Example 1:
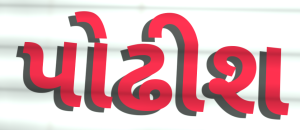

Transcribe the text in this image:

પોઢીશ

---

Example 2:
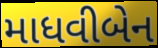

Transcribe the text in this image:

માધવીબેન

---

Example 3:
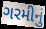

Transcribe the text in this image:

ગરમીનું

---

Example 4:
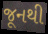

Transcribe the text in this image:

જૂનથી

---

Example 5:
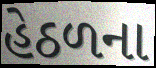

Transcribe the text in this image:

હેઠળના